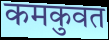
कमकुवत